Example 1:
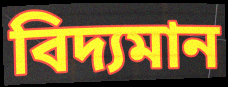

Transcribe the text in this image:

বিদ্যমান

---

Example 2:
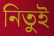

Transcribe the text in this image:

নিতুই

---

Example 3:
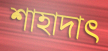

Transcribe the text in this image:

শাহাদাৎ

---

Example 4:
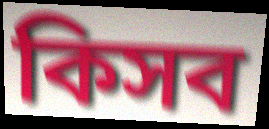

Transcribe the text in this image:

কিসব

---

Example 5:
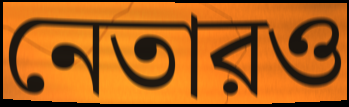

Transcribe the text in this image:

নেতারও